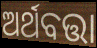
ଅର୍ଥବତ୍ତା